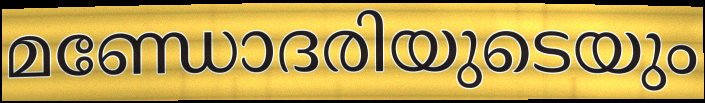
മണ്ഡോദരിയുടെയും